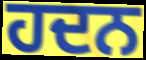
ਹਦਨ